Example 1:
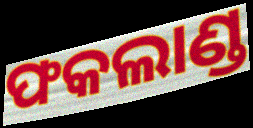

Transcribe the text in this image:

ଫକଲାଣ୍ଡ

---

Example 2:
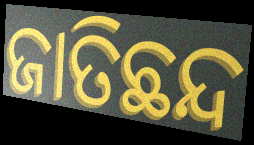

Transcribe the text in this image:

ଜାତିଛନ୍ଦ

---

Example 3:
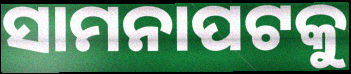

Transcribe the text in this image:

ସାମନାପଟକୁ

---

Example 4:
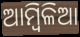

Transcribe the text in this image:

ଆମ୍ୱିଳିଆ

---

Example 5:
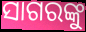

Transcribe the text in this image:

ସାଗରଙ୍କୁ